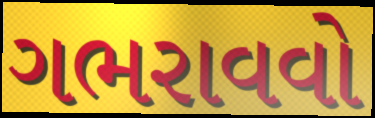
ગભરાવવો